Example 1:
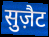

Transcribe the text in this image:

सुज़ैट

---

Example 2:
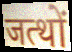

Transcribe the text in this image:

जत्थों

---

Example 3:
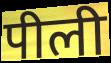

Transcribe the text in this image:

पीली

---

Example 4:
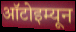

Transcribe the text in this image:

ऑटोइम्यून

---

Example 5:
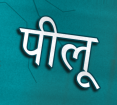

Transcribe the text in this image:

पीलू